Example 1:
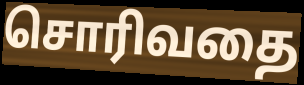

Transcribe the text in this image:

சொரிவதை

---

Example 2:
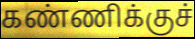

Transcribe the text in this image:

கண்ணிக்குச்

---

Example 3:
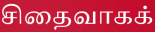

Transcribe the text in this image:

சிதைவாகக்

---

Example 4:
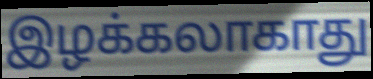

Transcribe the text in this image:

இழக்கலாகாது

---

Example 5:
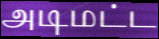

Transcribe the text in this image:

அடிமட்ட